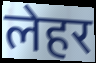
लेहर